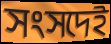
সংসদেই